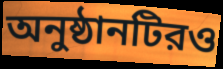
অনুষ্ঠানটিরও